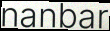
nanbar